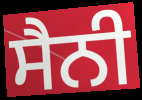
ਸੈਨੀ